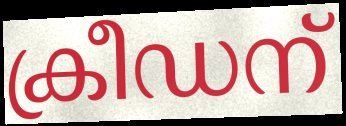
ക്രീഡന്